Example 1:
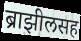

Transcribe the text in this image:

ब्राझीलसह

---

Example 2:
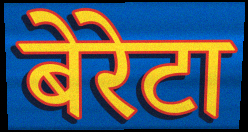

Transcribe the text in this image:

बेरेटा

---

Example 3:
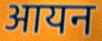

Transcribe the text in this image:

आयन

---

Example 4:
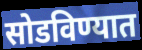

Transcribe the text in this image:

सोडविण्यात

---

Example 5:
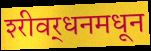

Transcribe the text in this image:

श्रीवर्धनमधून